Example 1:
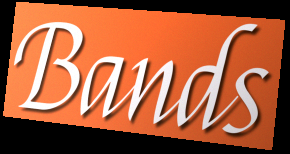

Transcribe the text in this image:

Bands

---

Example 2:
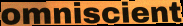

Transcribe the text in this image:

omniscient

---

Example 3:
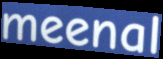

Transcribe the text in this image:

meenal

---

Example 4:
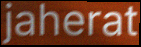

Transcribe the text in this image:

jaherat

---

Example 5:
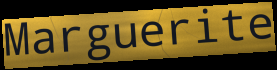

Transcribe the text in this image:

Marguerite